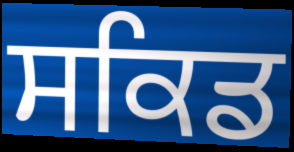
ਸਕਿਡ